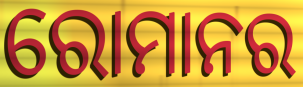
ରୋମାନର